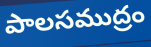
పాలసముద్రం